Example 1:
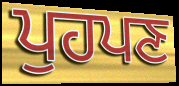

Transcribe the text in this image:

ਪੁਹਪਣ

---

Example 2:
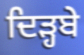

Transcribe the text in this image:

ਦਿੜ੍ਹਬੇ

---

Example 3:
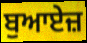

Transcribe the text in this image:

ਬੁਆਏਜ਼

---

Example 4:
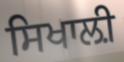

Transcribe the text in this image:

ਸਿਖਾਲ਼ੀ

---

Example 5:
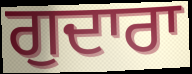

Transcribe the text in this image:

ਗੁਦਾਰਾ